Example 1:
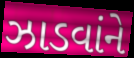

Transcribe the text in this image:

ઝાડવાંને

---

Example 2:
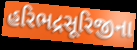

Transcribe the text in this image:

હરિભદ્રસૂરિજીના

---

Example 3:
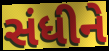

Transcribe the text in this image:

સંધીને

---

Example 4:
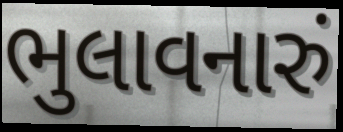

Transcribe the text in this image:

ભુલાવનારું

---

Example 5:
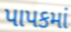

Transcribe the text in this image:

પાપકમાં